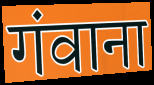
गंवाना